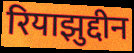
रियाझुद्दीन